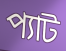
প্যাট